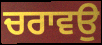
ਚਰਾਵਉ